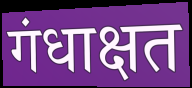
गंधाक्षत